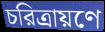
চরিত্রায়ণে